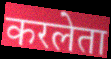
करलेता